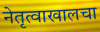
नेतृत्वाखालचा